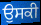
ਉਸਕੀ